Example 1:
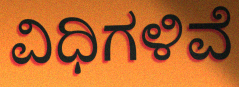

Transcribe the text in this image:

ವಿಧಿಗಳಿವೆ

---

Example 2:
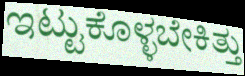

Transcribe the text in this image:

ಇಟ್ಟುಕೊಳ್ಳಬೇಕಿತ್ತು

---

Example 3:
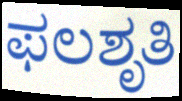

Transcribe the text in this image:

ಫಲಶೃತಿ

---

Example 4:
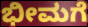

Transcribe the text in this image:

ಭೀಮಗೆ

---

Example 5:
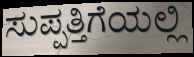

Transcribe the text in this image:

ಸುಪ್ಪತ್ತಿಗೆಯಲ್ಲಿ